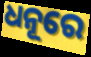
ଧନୂରେ